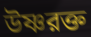
উষ্ণরক্ত